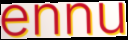
ennu